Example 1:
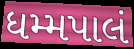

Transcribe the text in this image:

ધમ્મપાલં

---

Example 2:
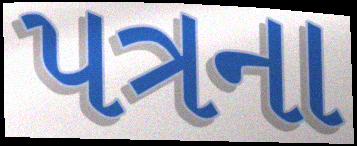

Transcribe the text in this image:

પત્રના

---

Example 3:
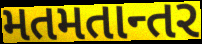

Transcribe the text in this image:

મતમતાન્તર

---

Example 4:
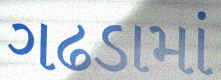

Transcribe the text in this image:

ગઢડામાં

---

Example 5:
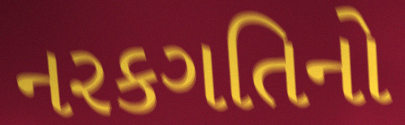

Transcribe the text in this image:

નરકગતિનો